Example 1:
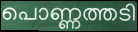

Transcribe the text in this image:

പൊണ്ണത്തടി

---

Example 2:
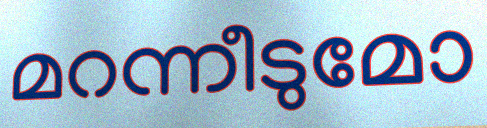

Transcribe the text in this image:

മറന്നീടുമോ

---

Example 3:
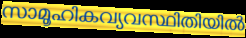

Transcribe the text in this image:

സാമൂഹികവ്യവസ്ഥിതിയിൽ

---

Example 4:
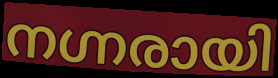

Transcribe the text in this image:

നഗ്നരായി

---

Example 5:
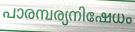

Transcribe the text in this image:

പാരമ്പര്യനിഷേധം